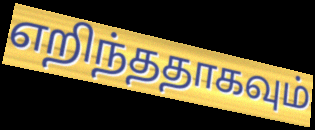
எறிந்ததாகவும்